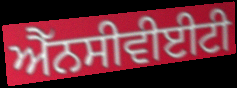
ਐੱਨਸੀਵੀਈਟੀ